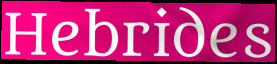
Hebrides